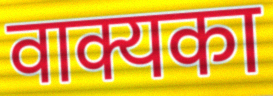
वाक्यका